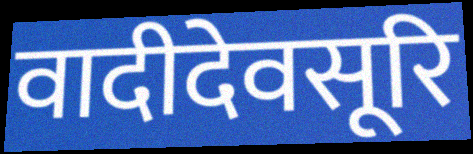
वादीदेवसूरि